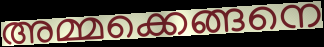
അമ്മക്കെങ്ങനെ